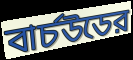
বার্চউডের